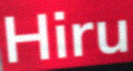
Hiru